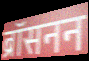
ब्रॉसनन